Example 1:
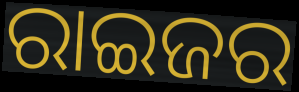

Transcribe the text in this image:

ରାଇଜର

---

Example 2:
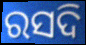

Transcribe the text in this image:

ରସଦି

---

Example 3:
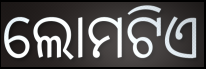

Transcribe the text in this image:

ଲୋମଟିଏ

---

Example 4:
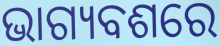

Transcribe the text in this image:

ଭାଗ୍ୟବଶରେ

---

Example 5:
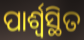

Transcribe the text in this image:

ପାର୍ଶ୍ୱସ୍ଥିତ